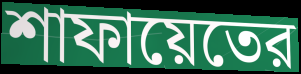
শাফায়েতের